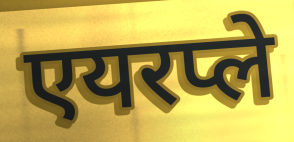
एयरप्ले